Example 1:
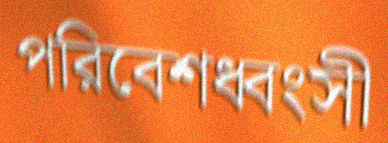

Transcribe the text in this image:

পরিবেশধ্বংসী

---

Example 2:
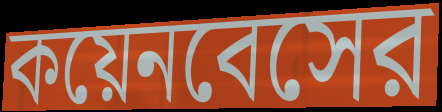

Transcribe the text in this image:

কয়েনবেসের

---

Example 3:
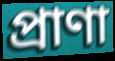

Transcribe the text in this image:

প্রাণা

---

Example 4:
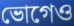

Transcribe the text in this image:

ভোগেও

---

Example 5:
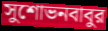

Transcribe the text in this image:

সুশোভনবাবুর